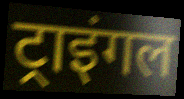
ट्राइंगल